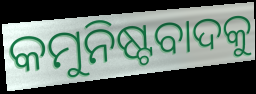
କମୁନିଷ୍ଟବାଦକୁ